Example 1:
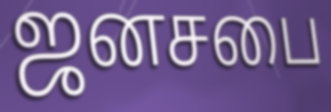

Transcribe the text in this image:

ஜனசபை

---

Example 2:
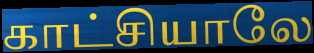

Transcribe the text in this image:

காட்சியாலே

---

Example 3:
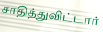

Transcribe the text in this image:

சாதித்துவிட்டார்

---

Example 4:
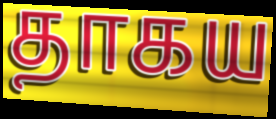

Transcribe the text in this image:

தாகய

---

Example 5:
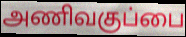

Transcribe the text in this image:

அணிவகுப்பை